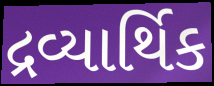
દ્રવ્યાર્થિક